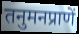
तनुमनप्राणें